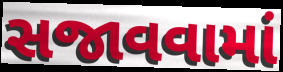
સજાવવામાં